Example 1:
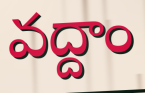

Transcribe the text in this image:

వద్దాం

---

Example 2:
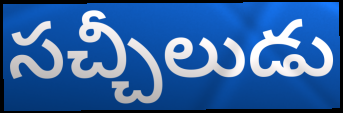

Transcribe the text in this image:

సచ్చీలుడు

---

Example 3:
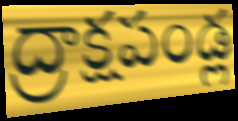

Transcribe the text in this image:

ద్రాక్షపండ్ల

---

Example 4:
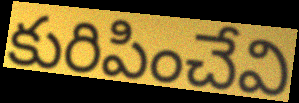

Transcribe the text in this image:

కురిపించేవి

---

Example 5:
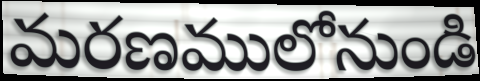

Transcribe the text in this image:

మరణములోనుండి